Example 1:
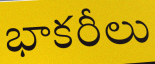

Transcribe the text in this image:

భాకరీలు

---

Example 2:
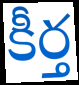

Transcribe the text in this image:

కీర్త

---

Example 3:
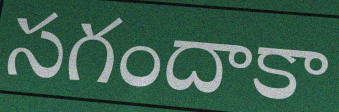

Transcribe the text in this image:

సగందాకా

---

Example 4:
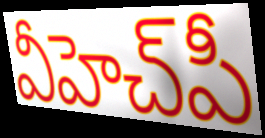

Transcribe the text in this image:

వీహెచ్‌పీ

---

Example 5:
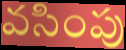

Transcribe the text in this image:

వసింపు